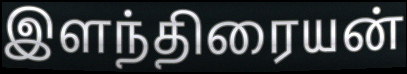
இளந்திரையன்